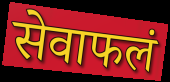
सेवाफलं